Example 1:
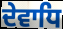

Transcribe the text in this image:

ਦੇਵਾਧਿ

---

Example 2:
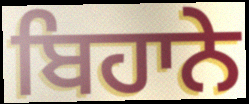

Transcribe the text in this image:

ਬਿਹਾਨੇ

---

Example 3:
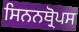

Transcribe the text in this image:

ਸਿਨਨਥ੍ਰੋਪਸ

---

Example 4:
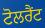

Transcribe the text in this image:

ਟੋਲਰੈਂਟ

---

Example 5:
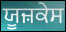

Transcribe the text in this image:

ਯੂਜ਼ਕੇਸ